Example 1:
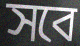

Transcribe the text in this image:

সবে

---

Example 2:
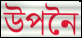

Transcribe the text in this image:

উপনৈ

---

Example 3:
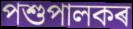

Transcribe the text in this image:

পশুপালকৰ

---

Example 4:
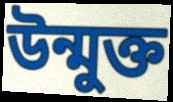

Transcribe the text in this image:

উন্মুক্ত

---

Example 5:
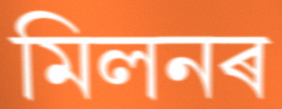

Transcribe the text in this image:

মিলনৰ